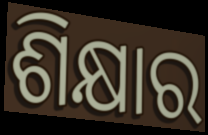
ଶିକ୍ଷାର